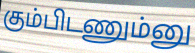
கும்பிடணும்னு